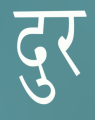
दुर